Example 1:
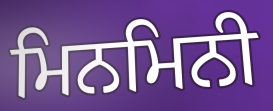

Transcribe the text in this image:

ਮਿਨਮਿਨੀ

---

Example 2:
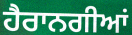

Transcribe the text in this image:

ਹੈਰਾਨਗੀਆਂ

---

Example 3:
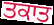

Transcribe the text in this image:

ਤਕਾਤ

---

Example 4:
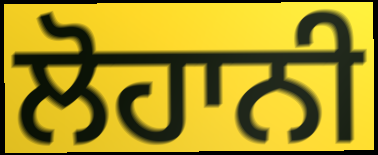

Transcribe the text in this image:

ਲੋਹਾਨੀ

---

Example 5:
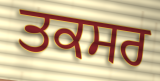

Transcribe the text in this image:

ਤਕਸਰ